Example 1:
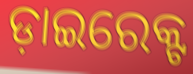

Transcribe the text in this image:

ଡ଼ାଇରେକ୍ଟ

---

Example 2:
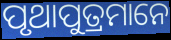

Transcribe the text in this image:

ପୃଥାପୁତ୍ରମାନେ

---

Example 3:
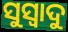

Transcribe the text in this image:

ସୁସ୍ୱାଦୁ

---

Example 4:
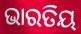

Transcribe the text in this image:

ଭାରତିୟ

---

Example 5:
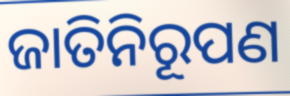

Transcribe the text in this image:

ଜାତିନିରୂପଣ